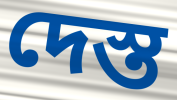
দেস্ত